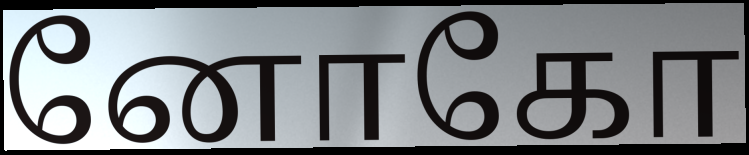
னோகோ